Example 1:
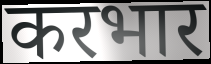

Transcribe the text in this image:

करभार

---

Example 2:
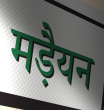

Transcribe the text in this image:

मड़ैयन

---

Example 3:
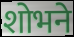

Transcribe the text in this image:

शोभने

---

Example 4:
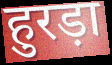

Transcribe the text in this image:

हुरड़ा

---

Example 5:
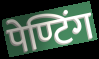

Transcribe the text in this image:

पेण्टिंग